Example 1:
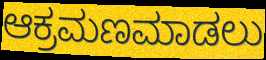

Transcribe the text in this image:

ಆಕ್ರಮಣಮಾಡಲು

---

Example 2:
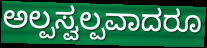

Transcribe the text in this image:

ಅಲ್ಪಸ್ವಲ್ಪವಾದರೂ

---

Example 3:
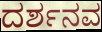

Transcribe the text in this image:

ದರ್ಶನವ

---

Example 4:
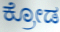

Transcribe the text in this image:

ಕ್ರೋಡ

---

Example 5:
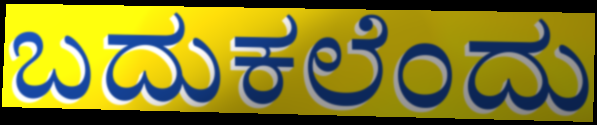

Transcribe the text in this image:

ಬದುಕಲೆಂದು